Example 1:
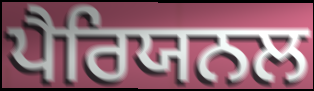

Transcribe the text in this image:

ਪੈਰਿਯਨਲ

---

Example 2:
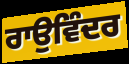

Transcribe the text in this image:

ਰਾਉਵਿੰਦਰ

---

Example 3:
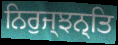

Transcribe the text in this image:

ਨਿਰੁਜ੍ਝਨ੍ਤਿ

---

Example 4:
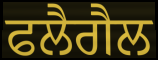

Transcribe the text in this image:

ਫਲੈਗੈਲ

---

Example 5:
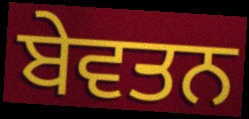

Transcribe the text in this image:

ਬੇਵਤਨ